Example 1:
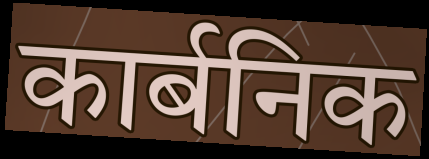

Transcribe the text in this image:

कार्बनिक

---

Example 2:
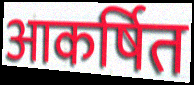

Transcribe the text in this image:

आकर्षित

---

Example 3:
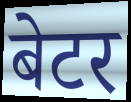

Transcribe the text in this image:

बेटर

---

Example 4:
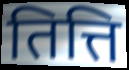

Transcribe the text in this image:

तित्ति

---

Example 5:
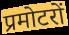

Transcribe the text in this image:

प्रमोटरों